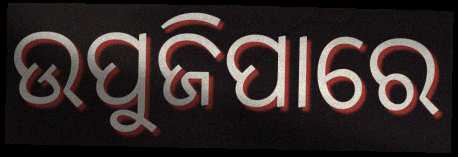
ଉପୁଜିପାରେ